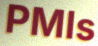
PMIs